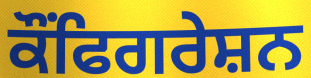
ਕੌਂਫਿਗਰੇਸ਼ਨ